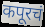
कपूरचं